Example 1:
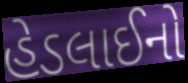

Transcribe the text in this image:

હેડલાઈનો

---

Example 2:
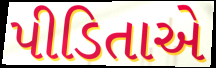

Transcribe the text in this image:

પીડિતાએ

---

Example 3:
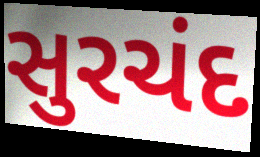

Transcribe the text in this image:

સુરચંદ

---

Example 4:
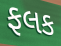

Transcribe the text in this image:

ફલક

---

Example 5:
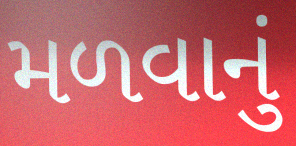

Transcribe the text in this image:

મળવાનું